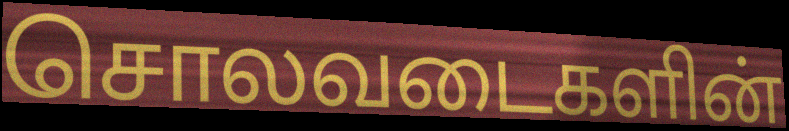
சொலவடைகளின்